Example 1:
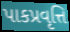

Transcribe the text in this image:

પાકપ્રવૃત્તિ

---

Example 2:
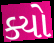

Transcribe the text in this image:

ક્યો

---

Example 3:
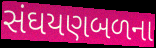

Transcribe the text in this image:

સંઘયણબળના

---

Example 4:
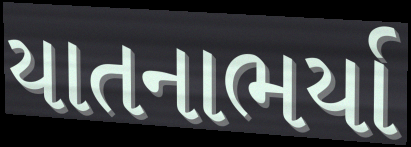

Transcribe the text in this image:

યાતનાભર્યા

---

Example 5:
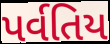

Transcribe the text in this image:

પર્વતિય